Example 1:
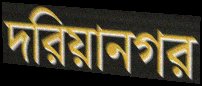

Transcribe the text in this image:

দরিয়ানগর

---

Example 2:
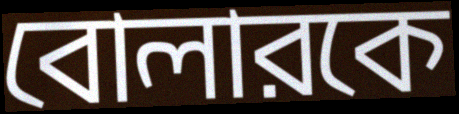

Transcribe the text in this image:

বোলারকে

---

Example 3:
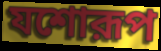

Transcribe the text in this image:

যশোরূপ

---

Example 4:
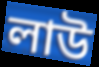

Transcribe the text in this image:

লাউ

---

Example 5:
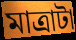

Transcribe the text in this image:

মাত্রাটা